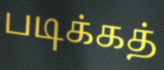
படிக்கத்